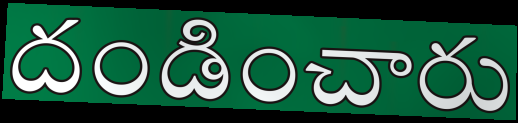
దండించారు